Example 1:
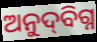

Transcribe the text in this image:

ଅନୁଦ୍‌ବିଗ୍ନ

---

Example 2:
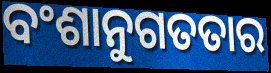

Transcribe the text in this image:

ବଂଶାନୁଗତତାର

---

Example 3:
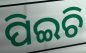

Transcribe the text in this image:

ପିଇଚି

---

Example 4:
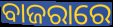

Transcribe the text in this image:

ବାଜରାରେ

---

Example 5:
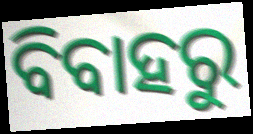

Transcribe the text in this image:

ବିବାହରୁ